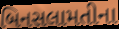
બિનસલામતીના